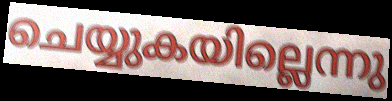
ചെയ്യുകയില്ലെന്നു